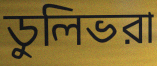
ডুলিভরা